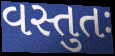
વસ્તુતઃ